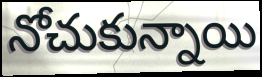
నోచుకున్నాయి